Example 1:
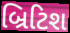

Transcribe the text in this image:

બ્રિટિશ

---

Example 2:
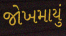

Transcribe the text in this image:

જોખમાયું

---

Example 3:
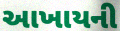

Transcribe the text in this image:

આખાયની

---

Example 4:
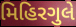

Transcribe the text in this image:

મિહિરગુલે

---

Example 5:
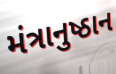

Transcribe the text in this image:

મંત્રાનુષ્ઠાન